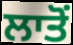
ਲਾਤੋਂ